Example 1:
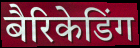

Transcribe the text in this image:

बैरिकेडिंग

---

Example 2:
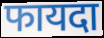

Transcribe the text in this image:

फायदा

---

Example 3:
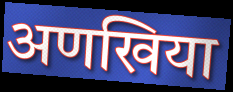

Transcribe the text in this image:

अणखिया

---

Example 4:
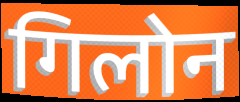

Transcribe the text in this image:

गिलोन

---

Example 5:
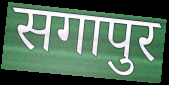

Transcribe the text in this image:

सगापुर